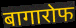
बागारोफ